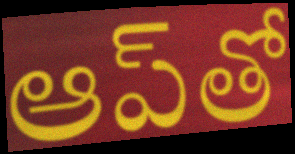
ఆప్‌తో